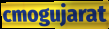
cmogujarat